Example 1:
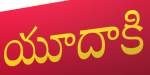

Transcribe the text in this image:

యూదాకి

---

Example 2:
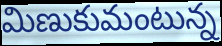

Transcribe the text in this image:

మిణుకుమంటున్న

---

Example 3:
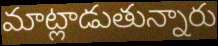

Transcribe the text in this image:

మాట్లాడుతున్నారు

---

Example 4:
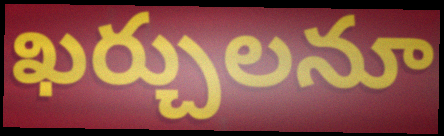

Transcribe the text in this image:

ఖర్చులనూ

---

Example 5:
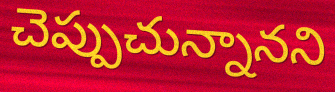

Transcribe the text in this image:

చెప్పుచున్నానని